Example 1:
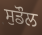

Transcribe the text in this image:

ਸੁਡੌਲ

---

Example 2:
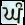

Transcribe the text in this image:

ਘੰ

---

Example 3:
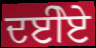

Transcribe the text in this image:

ਦਈੇਏ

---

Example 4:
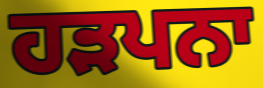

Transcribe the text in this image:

ਹੜਪਨਾ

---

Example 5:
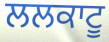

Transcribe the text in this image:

ਲਲਕਾਟੂ